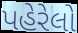
પહેરેલો